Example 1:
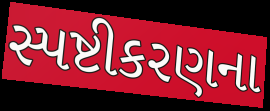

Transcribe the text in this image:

સ્પષ્ટીકરણના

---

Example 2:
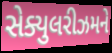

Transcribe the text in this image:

સેક્યુલરીઝમને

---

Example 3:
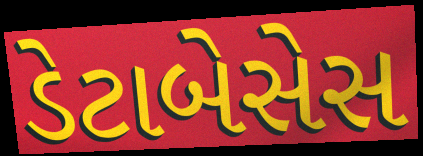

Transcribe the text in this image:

ડેટાબેસેસ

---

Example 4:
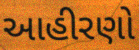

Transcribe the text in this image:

આહીરણો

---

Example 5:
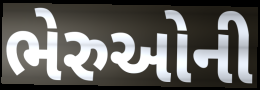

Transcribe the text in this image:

ભેરુઓની